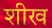
शीख